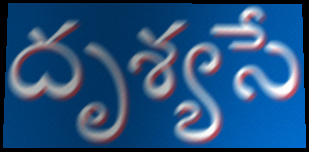
దృశ్యసే